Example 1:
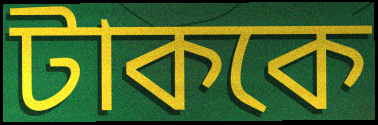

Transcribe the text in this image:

টাককে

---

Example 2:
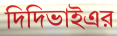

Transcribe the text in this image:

দিদিভাইএর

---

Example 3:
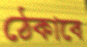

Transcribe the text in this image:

ঠেকাবে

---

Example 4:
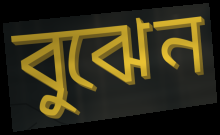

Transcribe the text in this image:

বুঝেন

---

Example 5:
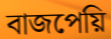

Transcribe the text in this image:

বাজপেয়ি